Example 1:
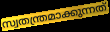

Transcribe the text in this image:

സ്വതന്ത്രമാക്കുന്നത്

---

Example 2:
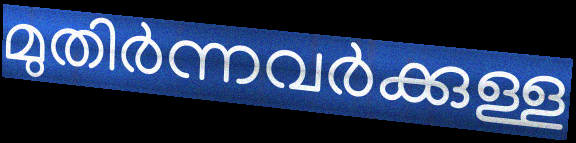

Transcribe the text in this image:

മുതിർന്നവർക്കുള്ള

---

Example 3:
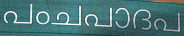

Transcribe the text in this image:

പംചപാദപ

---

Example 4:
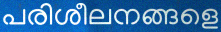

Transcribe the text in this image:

പരിശീലനങ്ങളെ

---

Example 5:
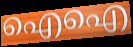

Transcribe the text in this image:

ഐഐ